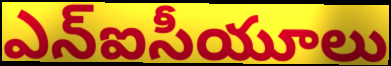
ఎన్ఐసీయూలు